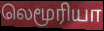
லெமூரியா